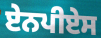
ਏਨਪੀਏਸ